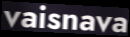
vaisnava